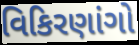
વિકિરણાંગો